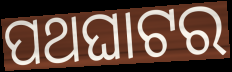
ପଥଘାଟର